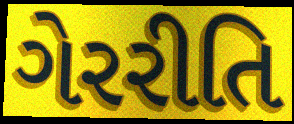
ગેરરીતિ